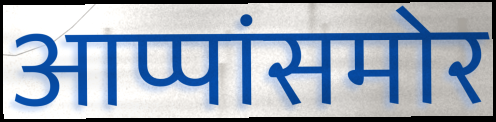
आप्पांसमोर